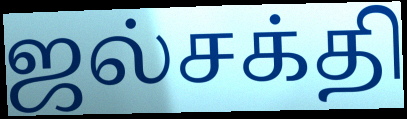
ஜல்சக்தி